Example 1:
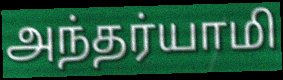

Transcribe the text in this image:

அந்தர்யாமி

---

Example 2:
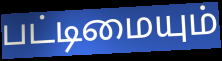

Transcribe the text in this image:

பட்டிமையும்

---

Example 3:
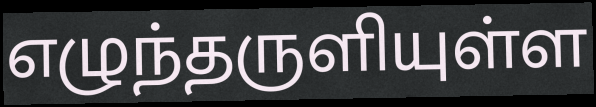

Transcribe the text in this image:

எழுந்தருளியுள்ள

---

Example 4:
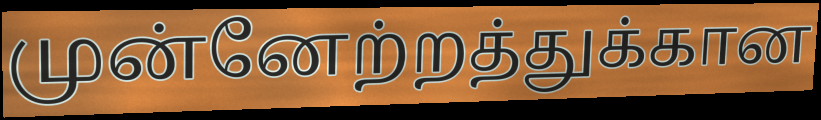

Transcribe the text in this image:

முன்னேற்றத்துக்கான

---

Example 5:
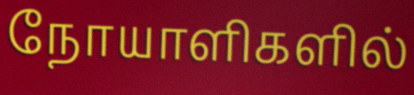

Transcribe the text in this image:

நோயாளிகளில்